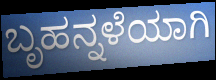
ಬೃಹನ್ನಳೆಯಾಗಿ